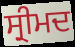
ਸ੍ਰੀਮਦ